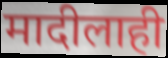
मादीलाही